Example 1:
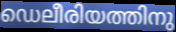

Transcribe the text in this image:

ഡെലീരിയത്തിനു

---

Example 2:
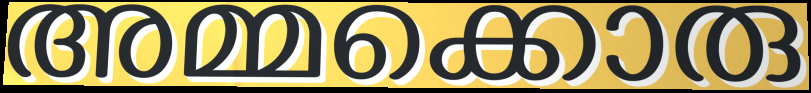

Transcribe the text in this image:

അമ്മക്കൊരു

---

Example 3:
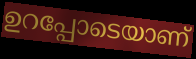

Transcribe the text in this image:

ഉറപ്പോടെയാണ്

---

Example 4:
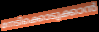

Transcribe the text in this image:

നേടിക്കൊടുക്കാൻ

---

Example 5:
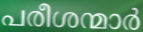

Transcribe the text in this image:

പരീശന്മാർ